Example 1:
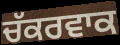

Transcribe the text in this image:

ਚੱਕਰਵਾਕ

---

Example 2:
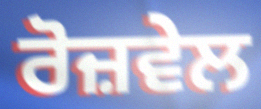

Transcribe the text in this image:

ਰੋਜ਼ਵੇਲ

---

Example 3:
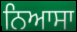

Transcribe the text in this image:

ਨਿਆਸਾ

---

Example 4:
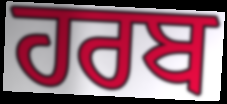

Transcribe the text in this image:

ਹਰਬ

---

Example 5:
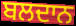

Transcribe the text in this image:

ਬਲਦਾਨ